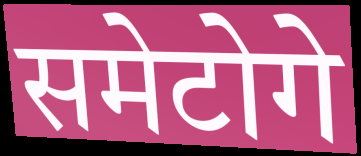
समेटोगे